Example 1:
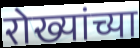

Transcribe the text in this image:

रोख्यांच्या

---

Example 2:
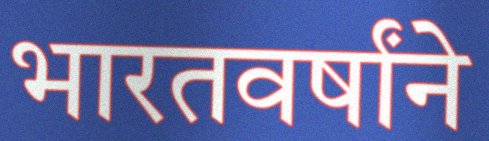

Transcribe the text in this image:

भारतवर्षांने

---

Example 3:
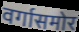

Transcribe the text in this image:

वर्गासमोर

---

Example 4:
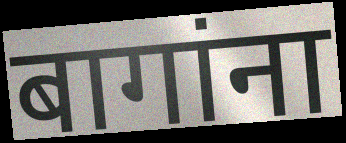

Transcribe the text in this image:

बागांना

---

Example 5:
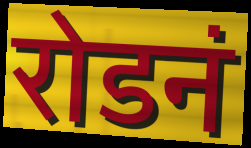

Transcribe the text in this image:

रोडनं